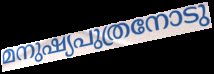
മനുഷ്യപുത്രനോടു